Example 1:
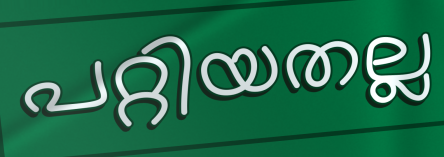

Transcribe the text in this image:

പറ്റിയതല്ല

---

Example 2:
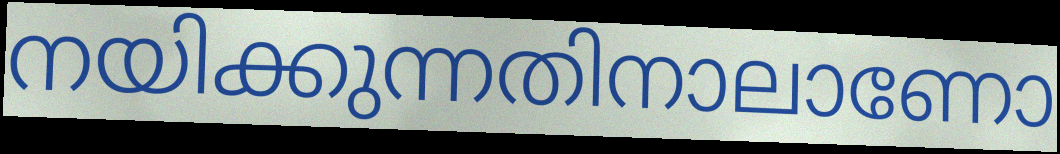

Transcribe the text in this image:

നയിക്കുന്നതിനാലാണോ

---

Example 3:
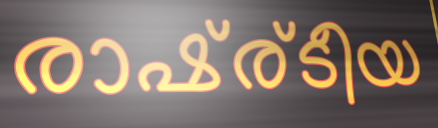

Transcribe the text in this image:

രാഷ്ര്ടീയ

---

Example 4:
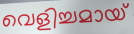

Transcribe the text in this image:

വെളിച്ചമായ്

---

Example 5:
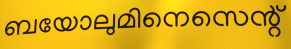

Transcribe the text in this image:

ബയോലുമിനെസെന്റ്